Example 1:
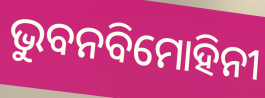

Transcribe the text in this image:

ଭୁବନବିମୋହିନୀ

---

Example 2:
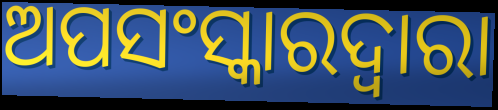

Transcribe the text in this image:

ଅପସଂସ୍କାରଦ୍ୱାରା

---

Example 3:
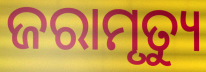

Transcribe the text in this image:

ଜରାମୃତ୍ୟୁ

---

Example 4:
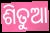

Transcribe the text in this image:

ଶିତୁଆ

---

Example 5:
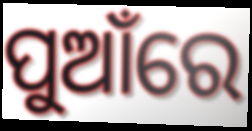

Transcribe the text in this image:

ପୁଆଁରେ